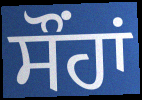
ਸੌਂਹਾਂ